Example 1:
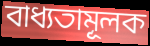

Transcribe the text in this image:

বাধ্যতামূলক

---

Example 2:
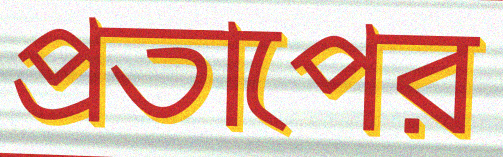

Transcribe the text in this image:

প্রতাপের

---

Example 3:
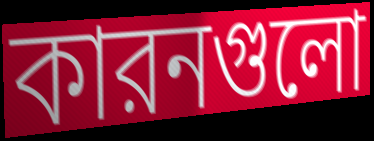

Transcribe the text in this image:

কারনগুলো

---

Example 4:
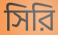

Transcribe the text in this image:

সিরি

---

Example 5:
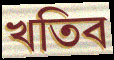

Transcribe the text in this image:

খতিব